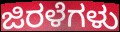
ಜಿರಳೆಗಳು